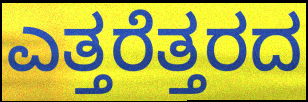
ಎತ್ತರೆತ್ತರದ